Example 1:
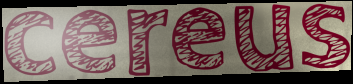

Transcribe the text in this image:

cereus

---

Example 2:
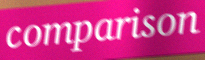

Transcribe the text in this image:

comparison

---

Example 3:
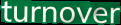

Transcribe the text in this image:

turnover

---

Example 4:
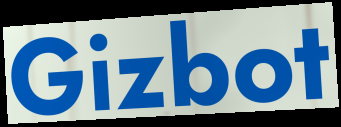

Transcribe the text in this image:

Gizbot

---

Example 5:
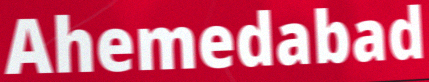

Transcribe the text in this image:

Ahemedabad